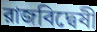
রাজবিদ্বেষী